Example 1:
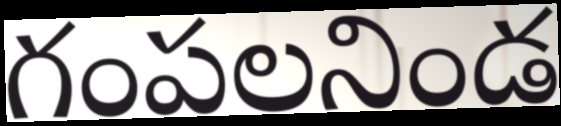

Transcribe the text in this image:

గంపలనిండ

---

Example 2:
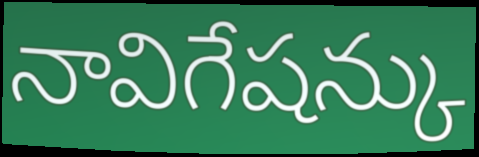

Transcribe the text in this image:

నావిగేషన్కు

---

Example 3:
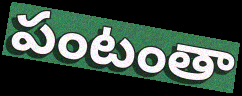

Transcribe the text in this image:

పంటంతా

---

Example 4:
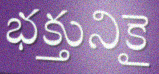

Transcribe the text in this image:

భక్తునికై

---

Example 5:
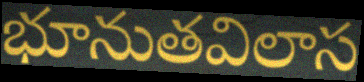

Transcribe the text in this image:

భూనుతవిలాస